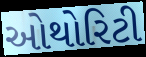
ઓથોરિટી